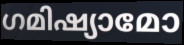
ഗമിഷ്യാമോ